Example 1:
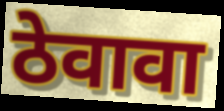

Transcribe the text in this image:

ठेवावा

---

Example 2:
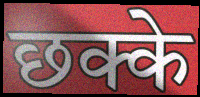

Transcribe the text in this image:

छक्के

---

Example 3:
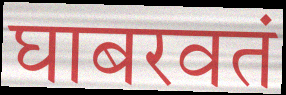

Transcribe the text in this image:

घाबरवतं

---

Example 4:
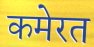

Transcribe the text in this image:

कमेरत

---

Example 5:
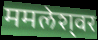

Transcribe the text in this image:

ममलेश्वर